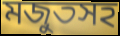
মজুতসহ